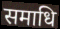
समाधि